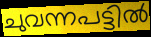
ചുവന്നപട്ടിൽ